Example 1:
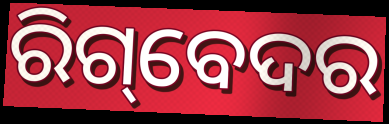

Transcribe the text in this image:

ରିଗ୍‌ବେଦର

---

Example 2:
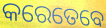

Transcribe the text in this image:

କରେତେବେ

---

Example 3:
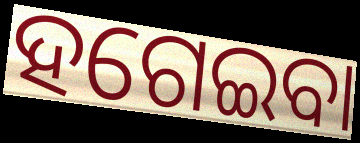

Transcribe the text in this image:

ହଗେଇବା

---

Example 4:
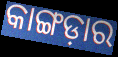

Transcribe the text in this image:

କାଙ୍ଗଡ଼ାର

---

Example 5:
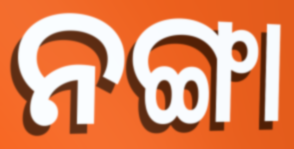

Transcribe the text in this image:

ନଙ୍ଗା